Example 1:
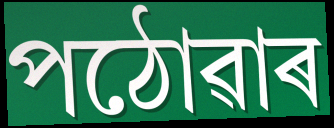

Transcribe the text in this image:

পঠোৱাৰ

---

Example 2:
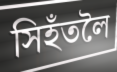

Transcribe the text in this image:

সিহঁতলৈ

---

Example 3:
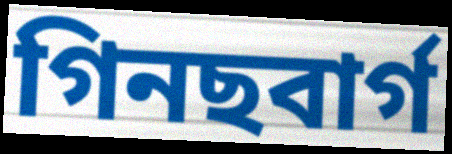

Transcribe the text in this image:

গিনছবাৰ্গ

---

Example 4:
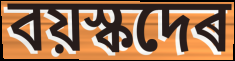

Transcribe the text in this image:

বয়স্কদেৰ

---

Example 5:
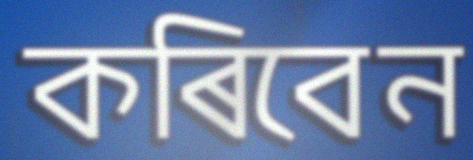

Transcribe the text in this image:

কৰিবেন